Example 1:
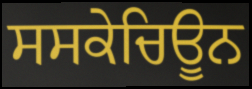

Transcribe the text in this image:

ਸਸਕੇਚਿਊਨ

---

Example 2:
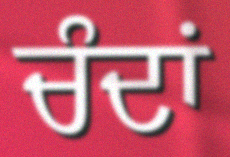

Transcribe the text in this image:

ਚੰਦਾਂ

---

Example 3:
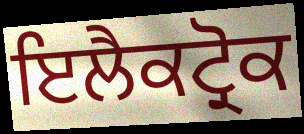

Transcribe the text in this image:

ਇਲੈਕਟ੍ਰੋਕ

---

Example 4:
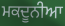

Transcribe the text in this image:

ਮਕਦੂਨੀਆ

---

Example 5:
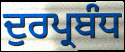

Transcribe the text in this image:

ਦੁਰਪ੍ਰਬੰਧ